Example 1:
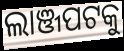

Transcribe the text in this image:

ଲାଞ୍ଜପଟକୁ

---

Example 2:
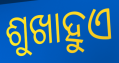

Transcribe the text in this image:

ଶୁଖାହୁଏ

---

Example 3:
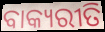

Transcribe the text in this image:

ବାକ୍ୟରୀତି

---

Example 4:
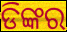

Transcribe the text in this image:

ଡିଙ୍କର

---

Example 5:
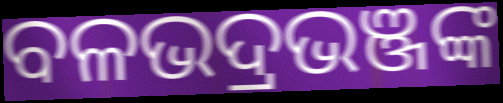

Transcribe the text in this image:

ବଳଭଦ୍ରଭଞ୍ଜଙ୍କ